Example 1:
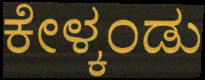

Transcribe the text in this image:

ಕೇಳ್ಕಂಡು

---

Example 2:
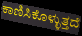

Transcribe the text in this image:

ಕಾಣಿಸಿಕೊಳ್ಳುತ್ತದೆ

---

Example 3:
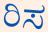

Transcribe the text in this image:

ರಿಸ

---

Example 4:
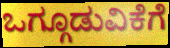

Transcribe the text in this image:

ಒಗ್ಗೂಡುವಿಕೆಗೆ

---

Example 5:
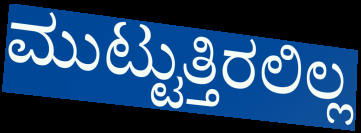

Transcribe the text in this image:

ಮುಟ್ಟುತ್ತಿರಲಿಲ್ಲ